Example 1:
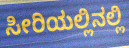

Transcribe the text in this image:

ಸೀರಿಯಲ್ಲಿನಲ್ಲಿ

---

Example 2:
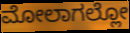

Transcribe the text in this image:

ಮೋಲಾಗಲ್ಲೋ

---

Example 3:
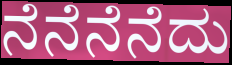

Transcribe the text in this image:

ನೆನೆನೆನೆದು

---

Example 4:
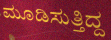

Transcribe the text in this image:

ಮೂಡಿಸುತ್ತಿದ್ದ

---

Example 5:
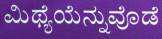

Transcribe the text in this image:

ಮಿಥ್ಯೆಯೆನ್ನುವೊಡೆ